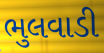
ભુલવાડી